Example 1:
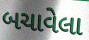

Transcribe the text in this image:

બચાવેલા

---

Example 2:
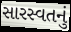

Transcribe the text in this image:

સારસ્વતનું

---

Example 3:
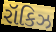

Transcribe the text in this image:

રૉકિઝ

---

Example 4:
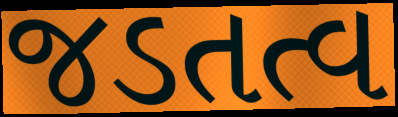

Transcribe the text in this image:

જડતત્વ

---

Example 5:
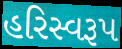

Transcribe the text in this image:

હરિસ્વરૂપ